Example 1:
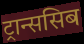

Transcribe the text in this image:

ट्रान्ससिब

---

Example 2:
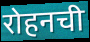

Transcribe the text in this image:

रोहनची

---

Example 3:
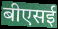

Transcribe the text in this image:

बीएसई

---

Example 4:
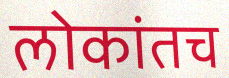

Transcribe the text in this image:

लोकांतच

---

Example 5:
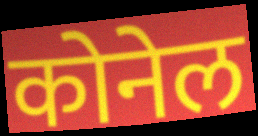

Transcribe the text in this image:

कोनेल